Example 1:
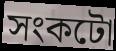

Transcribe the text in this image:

সংকটো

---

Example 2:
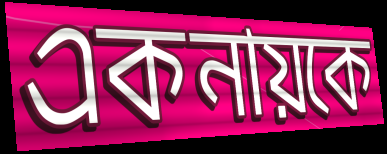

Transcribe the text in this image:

একনায়কে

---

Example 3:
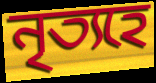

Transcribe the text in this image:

নৃত্যহে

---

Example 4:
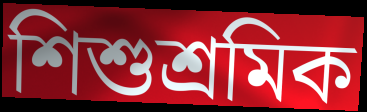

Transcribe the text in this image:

শিশুশ্ৰমিক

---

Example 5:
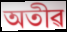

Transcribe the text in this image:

অতীৱ